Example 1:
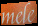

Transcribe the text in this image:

mele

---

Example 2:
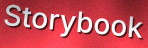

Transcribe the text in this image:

Storybook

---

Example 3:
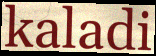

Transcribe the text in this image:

kaladi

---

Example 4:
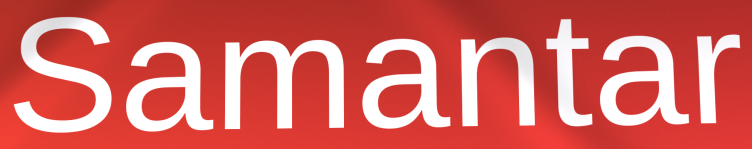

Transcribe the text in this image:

Samantar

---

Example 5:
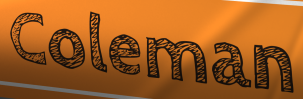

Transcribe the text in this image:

Coleman